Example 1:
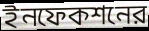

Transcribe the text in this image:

ইনফেকশনের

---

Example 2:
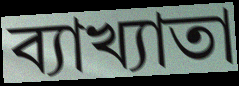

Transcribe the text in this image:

ব্যাখ্যাতা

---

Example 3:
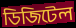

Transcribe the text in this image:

ডিজিটেল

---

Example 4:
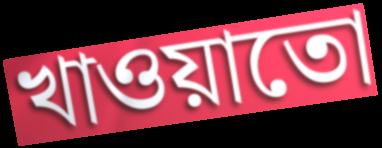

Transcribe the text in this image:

খাওয়াতো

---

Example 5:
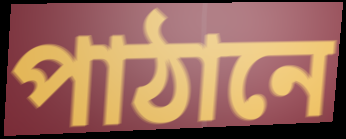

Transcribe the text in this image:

পাঠানে